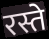
रस्ते